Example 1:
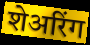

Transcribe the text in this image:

शेअरिंग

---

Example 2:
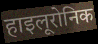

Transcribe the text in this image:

हाइलूरोनिक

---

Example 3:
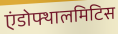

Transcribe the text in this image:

एंडोफ्थालमिटिस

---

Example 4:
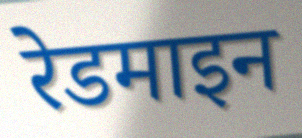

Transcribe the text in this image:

रेडमाइन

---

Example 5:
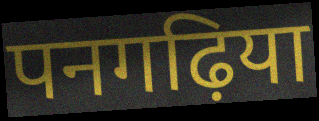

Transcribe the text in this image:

पनगढ़िया